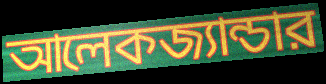
আলেকজ্যান্ডার